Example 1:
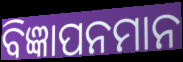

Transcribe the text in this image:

ବିଜ୍ଞାପନମାନ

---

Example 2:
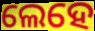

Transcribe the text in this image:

ଲେହେ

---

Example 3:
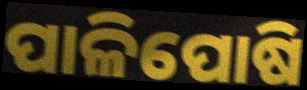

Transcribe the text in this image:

ପାଳିପୋଷି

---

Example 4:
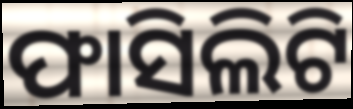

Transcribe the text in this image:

ଫାସିଲିଟି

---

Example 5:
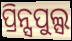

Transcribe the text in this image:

ପ୍ରିନ୍ସପୁଲ୍ସ